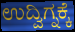
ಉದ್ವಿಗ್ನಕ್ಕೆ